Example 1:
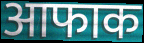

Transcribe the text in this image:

आफाक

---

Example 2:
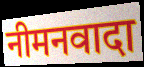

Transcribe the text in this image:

नीमनवादा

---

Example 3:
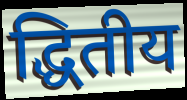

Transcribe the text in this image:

द्धितीय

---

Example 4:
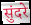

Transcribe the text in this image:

सुंदरे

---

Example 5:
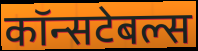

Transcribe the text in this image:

कॉन्सटेबल्स